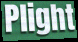
Plight